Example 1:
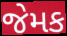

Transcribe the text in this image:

જેમક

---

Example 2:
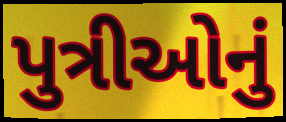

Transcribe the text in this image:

પુત્રીઓનું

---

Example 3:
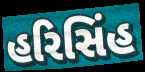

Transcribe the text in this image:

હરિસિંહ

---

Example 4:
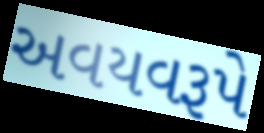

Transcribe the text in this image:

અવયવરૂપે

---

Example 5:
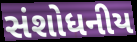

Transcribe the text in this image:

સંશોધનીય